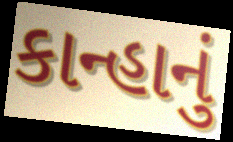
કાન્હાનું